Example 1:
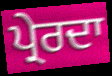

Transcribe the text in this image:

ਪ੍ਰੇਰਦਾ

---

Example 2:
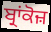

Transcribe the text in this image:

ਬ੍ਰਾਂਕੋਜ਼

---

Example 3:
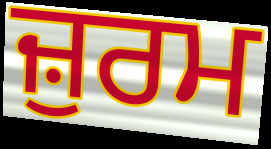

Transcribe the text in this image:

ਜ਼ੁਰਮ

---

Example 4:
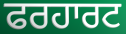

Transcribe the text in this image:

ਫਰਹਾਰਟ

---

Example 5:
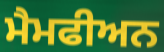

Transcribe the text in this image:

ਮੈਮਫੀਅਨ